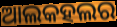
ଆଲକହଲର